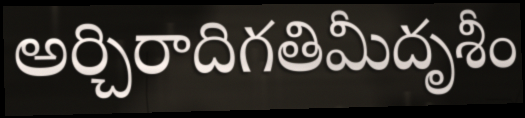
అర్చిరాదిగతిమీదృశీం